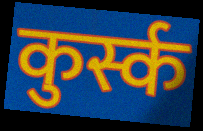
कुर्स्क